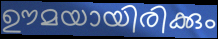
ഊമയായിരിക്കും